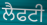
ਲੈਫਟੀ